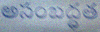
అసంబద్ధత